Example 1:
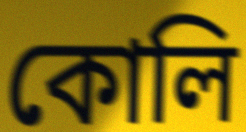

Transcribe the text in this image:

কোলি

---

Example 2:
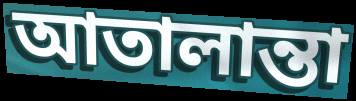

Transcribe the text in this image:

আতালান্তা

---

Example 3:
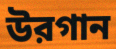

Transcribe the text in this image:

উরগান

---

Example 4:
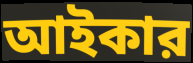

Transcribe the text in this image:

আইকার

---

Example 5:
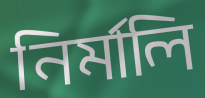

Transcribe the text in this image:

নির্মালি